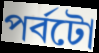
পৰ্বটো